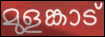
മുളങ്കാട്